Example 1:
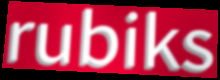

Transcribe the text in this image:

rubiks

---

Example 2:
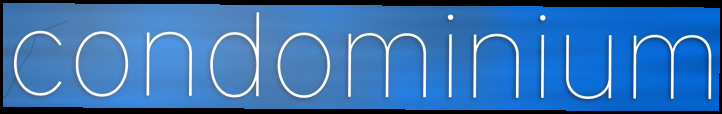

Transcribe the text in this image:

condominium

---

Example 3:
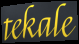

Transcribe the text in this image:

tekale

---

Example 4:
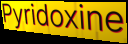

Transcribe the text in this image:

Pyridoxine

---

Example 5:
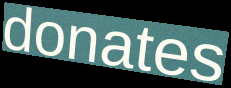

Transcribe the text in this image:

donates